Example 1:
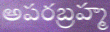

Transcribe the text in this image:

అపరబ్రహ్మ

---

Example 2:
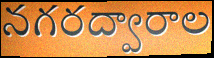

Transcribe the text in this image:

నగరద్వారాల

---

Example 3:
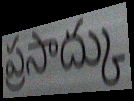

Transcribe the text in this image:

ప్రసాద్కు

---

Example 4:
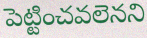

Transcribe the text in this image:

పెట్టించవలెనని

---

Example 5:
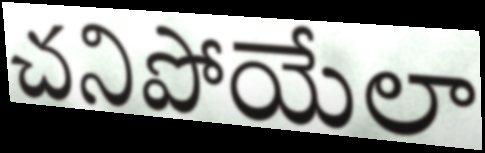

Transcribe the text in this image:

చనిపోయేలా